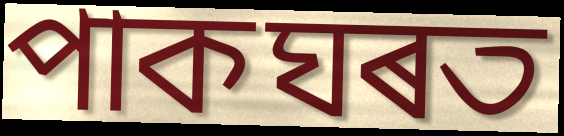
পাকঘৰত